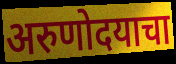
अरुणोदयाचा